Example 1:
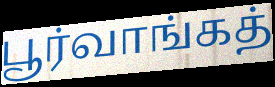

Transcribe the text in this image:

பூர்வாங்கத்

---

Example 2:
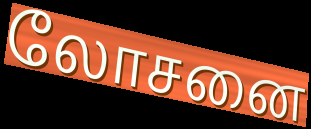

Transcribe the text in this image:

லோசனை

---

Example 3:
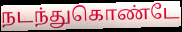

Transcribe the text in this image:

நடந்துகொண்டே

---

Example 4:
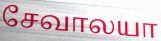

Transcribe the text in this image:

சேவாலயா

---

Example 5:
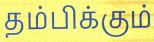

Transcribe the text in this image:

தம்பிக்கும்